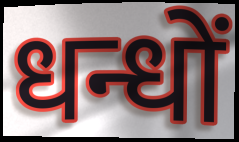
धन्धों